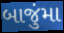
બાજુંમા